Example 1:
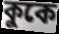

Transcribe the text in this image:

কুকে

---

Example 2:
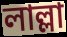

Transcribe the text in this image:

লাল্লা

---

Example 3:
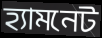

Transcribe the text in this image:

হ্যামনেট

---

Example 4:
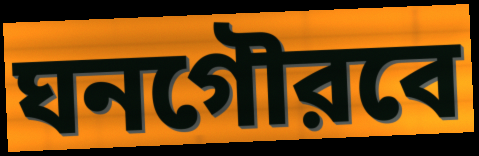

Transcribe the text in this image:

ঘনগৌরবে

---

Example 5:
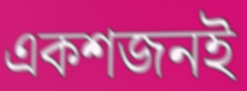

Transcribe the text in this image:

একশজনই